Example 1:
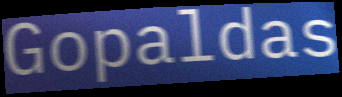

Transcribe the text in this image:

Gopaldas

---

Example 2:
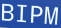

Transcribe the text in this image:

BIPM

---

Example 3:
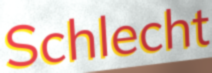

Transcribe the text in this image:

Schlecht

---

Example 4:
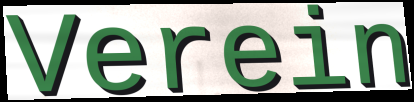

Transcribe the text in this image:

Verein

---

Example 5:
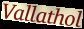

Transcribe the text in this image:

Vallathol